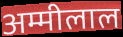
अम्मीलाल